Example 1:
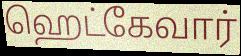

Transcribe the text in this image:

ஹெட்கேவார்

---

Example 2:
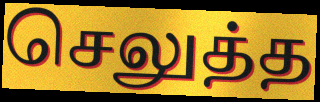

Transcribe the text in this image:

செலுத்த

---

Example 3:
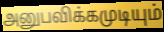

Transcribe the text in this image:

அனுபவிக்கமுடியும்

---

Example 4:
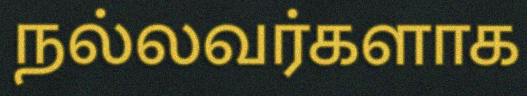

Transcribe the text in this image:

நல்லவர்களாக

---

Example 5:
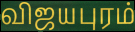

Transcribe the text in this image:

விஜயபுரம்